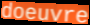
doeuvre